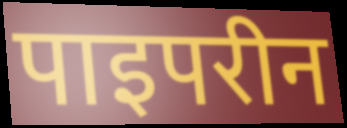
पाइपरीन